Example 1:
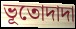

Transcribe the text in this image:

ভূতোদাদা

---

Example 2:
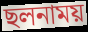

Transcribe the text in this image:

ছলনাময়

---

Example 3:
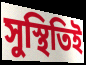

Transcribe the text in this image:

সুস্থিতিই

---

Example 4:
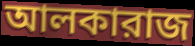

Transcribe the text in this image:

আলকারাজ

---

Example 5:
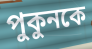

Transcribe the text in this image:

পুকুনকে